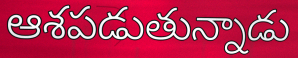
ఆశపడుతున్నాడు